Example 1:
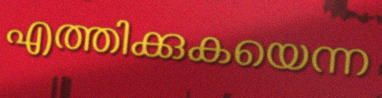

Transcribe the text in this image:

എത്തിക്കുകയെന്ന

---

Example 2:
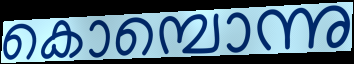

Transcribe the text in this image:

കൊമ്പൊന്നു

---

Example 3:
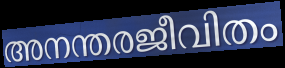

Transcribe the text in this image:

അനന്തരജീവിതം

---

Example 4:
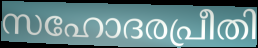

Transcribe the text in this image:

സഹോദരപ്രീതി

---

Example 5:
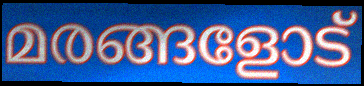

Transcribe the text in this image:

മരങ്ങളോട്